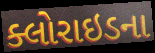
ક્લોરાઇડના